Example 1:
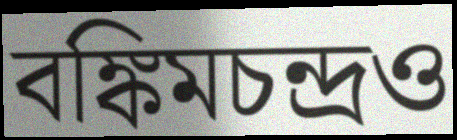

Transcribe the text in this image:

বঙ্কিমচন্দ্রও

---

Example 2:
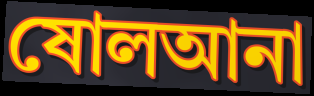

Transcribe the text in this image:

ষোলআনা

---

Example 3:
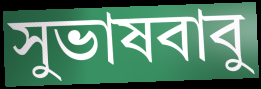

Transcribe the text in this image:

সুভাষবাবু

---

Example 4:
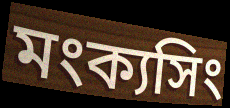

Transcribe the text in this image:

মংক্যসিং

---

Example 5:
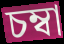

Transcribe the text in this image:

চম্বা